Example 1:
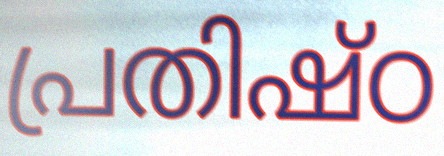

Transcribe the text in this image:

പ്രതിഷ്ഠ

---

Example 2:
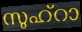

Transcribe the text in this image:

സുഹ്റാ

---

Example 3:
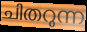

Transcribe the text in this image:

ചിതറുന്ന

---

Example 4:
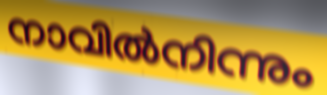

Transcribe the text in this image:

നാവിൽനിന്നും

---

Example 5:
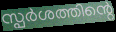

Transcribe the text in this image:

സ്പർശത്തിന്റെ